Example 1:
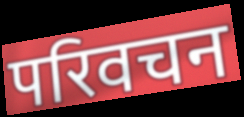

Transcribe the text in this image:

परिवचन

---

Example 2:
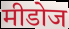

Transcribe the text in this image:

मीडोज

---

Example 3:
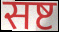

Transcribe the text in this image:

सष्ट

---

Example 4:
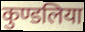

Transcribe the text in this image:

कुण्डलिया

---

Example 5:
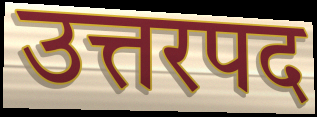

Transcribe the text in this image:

उत्तरपद